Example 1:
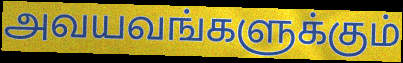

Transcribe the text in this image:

அவயவங்களுக்கும்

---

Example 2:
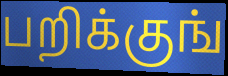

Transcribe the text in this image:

பறிக்குங்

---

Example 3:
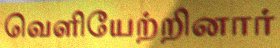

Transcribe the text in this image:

வெளியேற்றினார்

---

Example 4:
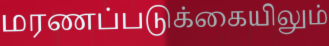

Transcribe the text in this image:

மரணப்படுக்கையிலும்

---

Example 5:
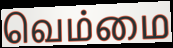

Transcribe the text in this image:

வெம்மை